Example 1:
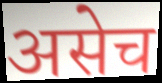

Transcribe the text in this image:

असेच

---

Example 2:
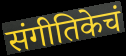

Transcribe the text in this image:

संगीतिकेचं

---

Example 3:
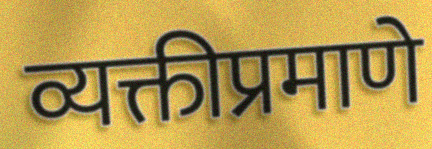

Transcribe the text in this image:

व्यक्तीप्रमाणे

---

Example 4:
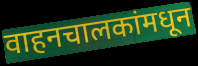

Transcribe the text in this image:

वाहनचालकांमधून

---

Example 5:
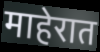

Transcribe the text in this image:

माहेरात